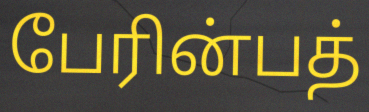
பேரின்பத்